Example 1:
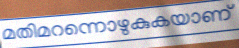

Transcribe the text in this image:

മതിമറന്നൊഴുകുകയാണ്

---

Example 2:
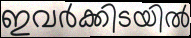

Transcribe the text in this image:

ഇവർക്കിടയിൽ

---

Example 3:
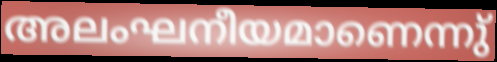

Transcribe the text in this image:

അലംഘനീയമാണെന്നു്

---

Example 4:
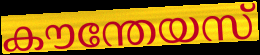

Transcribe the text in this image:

കൗന്തേയസ്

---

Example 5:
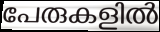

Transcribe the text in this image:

പേരുകളിൽ